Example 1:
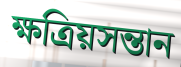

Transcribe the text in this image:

ক্ষত্রিয়সন্তান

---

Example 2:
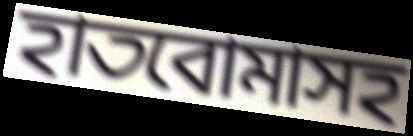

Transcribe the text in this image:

হাতবোমাসহ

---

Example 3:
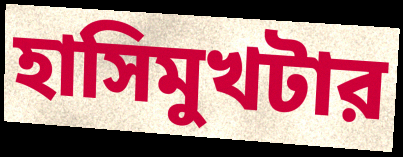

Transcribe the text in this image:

হাসিমুখটার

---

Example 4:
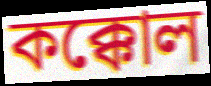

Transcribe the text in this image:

কক্কোল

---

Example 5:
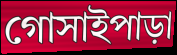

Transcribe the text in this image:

গোসাইপাড়া